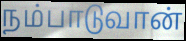
நம்பாடுவான்